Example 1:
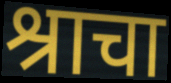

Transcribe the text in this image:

श्राचा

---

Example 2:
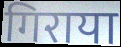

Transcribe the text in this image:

गिराया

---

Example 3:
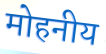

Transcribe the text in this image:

मोहनीय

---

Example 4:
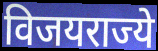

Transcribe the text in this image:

विजयराज्ये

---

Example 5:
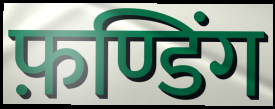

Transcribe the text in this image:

फ़ण्डिंग